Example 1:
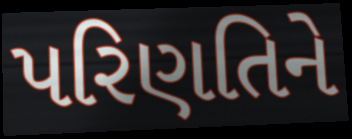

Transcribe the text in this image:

પરિણતિને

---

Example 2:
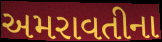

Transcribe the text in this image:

અમરાવતીના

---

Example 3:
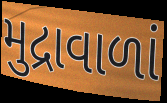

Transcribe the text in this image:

મુદ્રાવાળાં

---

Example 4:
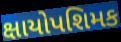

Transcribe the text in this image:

ક્ષાયોપશિમક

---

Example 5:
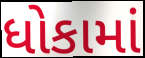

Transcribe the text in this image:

ધોકામાં